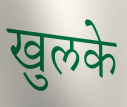
खुलके